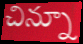
చిన్నూ